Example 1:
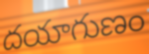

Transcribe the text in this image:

దయాగుణం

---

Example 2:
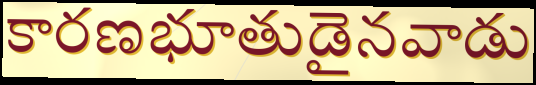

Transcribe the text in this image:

కారణభూతుడైనవాడు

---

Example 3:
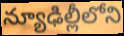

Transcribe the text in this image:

న్యూఢిల్లీలోని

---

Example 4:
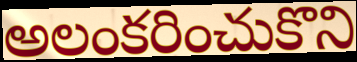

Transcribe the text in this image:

అలంకరించుకొని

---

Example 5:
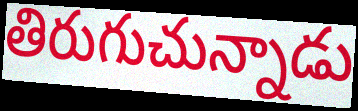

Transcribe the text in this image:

తిరుగుచున్నాడు